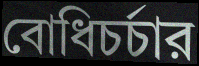
বোধিচর্চার